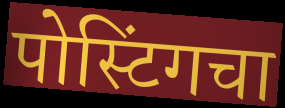
पोस्टिंगचा